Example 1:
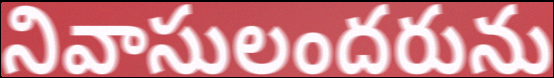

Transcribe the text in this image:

నివాసులందరును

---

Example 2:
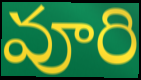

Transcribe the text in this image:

వూరి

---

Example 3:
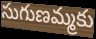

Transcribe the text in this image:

సుగుణమ్మకు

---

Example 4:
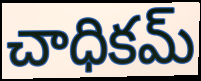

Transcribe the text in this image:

చాధికమ్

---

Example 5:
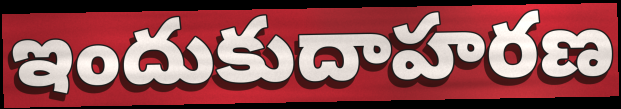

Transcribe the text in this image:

ఇందుకుదాహరణ